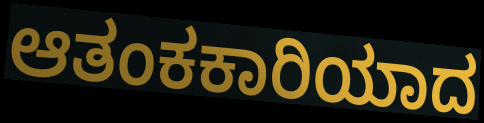
ಆತಂಕಕಾರಿಯಾದ